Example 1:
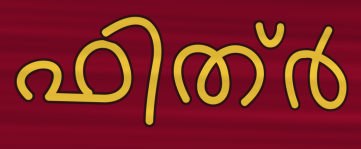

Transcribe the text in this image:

ഫിത്ർ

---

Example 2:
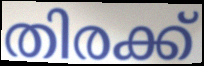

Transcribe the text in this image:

തിരക്ക്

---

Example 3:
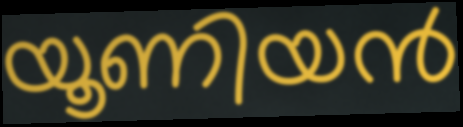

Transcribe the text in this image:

യൂണിയൻ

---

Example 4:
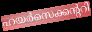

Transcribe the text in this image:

ഹയർസെക്കന്ററി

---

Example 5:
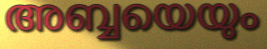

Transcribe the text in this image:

അബ്ബയെയും